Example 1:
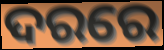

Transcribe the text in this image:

ଦରରେ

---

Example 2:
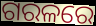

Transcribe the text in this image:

ଗରଳରେ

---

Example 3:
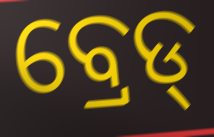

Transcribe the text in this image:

ବ୍ରେଡ୍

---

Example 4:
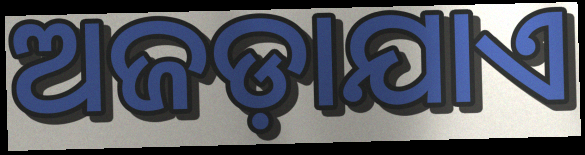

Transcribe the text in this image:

ଅଜଡ଼ାଯାଏ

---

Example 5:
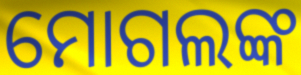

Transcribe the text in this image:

ମୋଗଲଙ୍କ